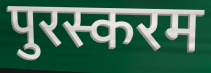
पुरस्करम